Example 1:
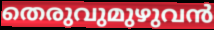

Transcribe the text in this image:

തെരുവുമുഴുവൻ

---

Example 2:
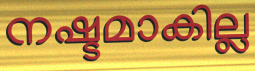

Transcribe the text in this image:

നഷ്ടമാകില്ല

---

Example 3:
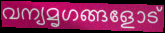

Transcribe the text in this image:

വന്യമൃഗങ്ങളോട്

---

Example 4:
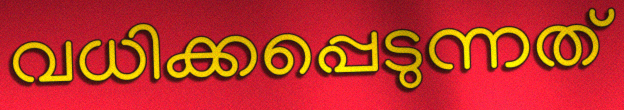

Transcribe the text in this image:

വധിക്കപ്പെടുന്നത്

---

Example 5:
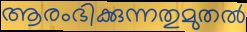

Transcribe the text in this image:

ആരംഭിക്കുന്നതുമുതൽ